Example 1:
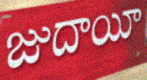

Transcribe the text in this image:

జుదాయీ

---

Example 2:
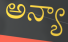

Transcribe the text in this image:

అన్యా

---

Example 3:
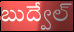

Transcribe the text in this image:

బుద్వేల్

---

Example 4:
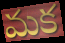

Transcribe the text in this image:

మక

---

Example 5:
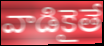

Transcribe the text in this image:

వాడికైతే